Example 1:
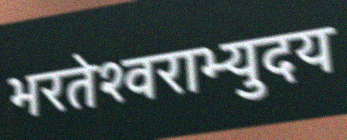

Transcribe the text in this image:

भरतेश्वराभ्युदय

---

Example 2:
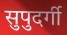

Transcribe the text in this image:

सुपुदर्गी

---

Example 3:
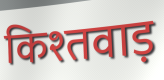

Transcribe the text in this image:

किश्तवाड़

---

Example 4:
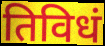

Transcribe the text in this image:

तिविधं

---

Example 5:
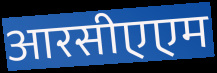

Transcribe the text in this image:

आरसीएएम